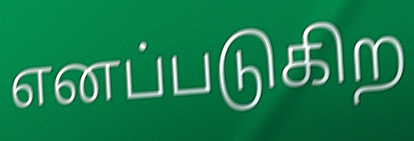
எனப்படுகிற